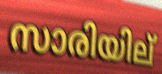
സാരിയില്